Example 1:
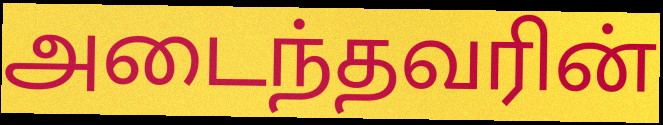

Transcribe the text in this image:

அடைந்தவரின்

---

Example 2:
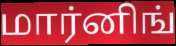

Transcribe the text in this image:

மார்னிங்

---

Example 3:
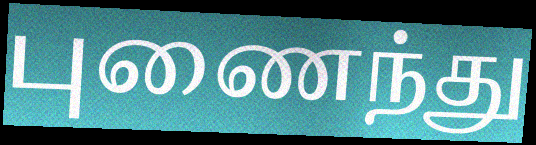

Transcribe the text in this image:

புணைந்து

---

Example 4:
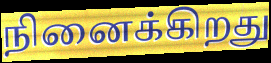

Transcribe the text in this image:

நினைக்கிறது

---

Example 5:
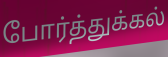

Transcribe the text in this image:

போர்த்துக்கல்